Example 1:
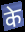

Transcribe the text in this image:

के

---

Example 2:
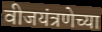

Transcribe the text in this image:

वीजयंत्रणेच्या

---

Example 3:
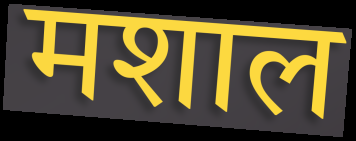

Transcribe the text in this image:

मशाल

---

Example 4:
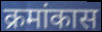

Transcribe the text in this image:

क्रमांकास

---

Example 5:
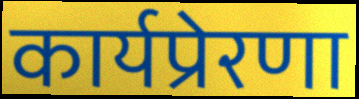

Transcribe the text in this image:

कार्यप्रेरणा